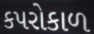
કપરોકાળ